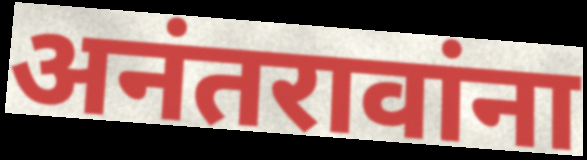
अनंतरावांना